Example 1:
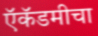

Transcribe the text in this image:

ऍकॅडमीचा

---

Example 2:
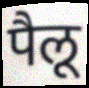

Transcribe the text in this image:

पैलू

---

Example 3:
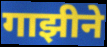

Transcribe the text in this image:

गाझीने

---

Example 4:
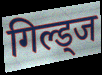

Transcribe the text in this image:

गिल्ड्ज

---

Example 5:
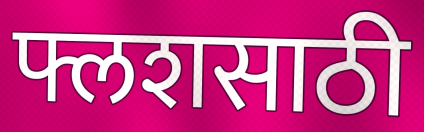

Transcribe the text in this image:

फ्लशसाठी